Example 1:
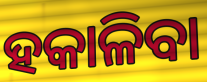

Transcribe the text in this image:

ହକାଳିବା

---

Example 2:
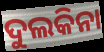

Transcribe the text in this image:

ଦୁଲକିନା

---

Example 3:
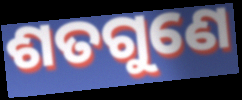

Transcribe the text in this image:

ଶତଗୁଣେ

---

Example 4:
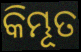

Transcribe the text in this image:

କିମ୍ଭୂତ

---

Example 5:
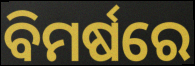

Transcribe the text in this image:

ବିମର୍ଷରେ